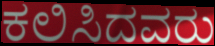
ಕಲಿಸಿದವರು